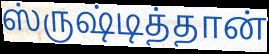
ஸ்ருஷ்டித்தான்